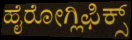
ಹೈರೋಗ್ಲಿಫಿಕ್ಸ್